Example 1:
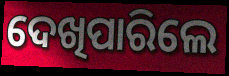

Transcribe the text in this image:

ଦେଖିପାରିଲେ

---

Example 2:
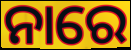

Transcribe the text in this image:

ନାରେ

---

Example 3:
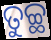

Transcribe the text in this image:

ତୁଚ୍ଛ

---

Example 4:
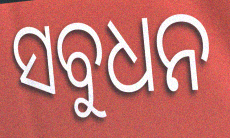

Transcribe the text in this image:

ସବୁଧନ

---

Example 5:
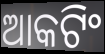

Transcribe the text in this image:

ଆକଟିଂ